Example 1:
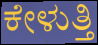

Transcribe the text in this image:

ಕೇಳುತ್ತಿ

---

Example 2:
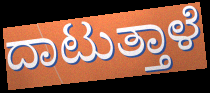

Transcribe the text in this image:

ದಾಟುತ್ತಾಳೆ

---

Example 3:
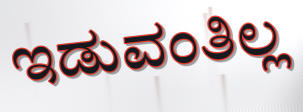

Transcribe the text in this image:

ಇಡುವಂತಿಲ್ಲ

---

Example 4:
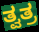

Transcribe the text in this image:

ತ್ವತ್ರ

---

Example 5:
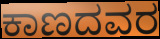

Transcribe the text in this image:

ಕಾಣದವರ